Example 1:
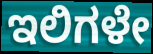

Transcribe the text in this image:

ಇಲಿಗಳೇ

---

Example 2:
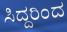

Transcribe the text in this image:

ಸಿದ್ದರಿಂದ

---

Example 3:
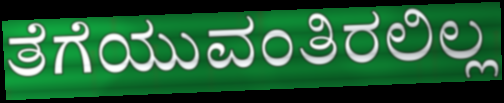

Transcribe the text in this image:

ತೆಗೆಯುವಂತಿರಲಿಲ್ಲ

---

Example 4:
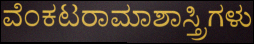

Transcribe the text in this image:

ವೆಂಕಟರಾಮಾಶಾಸ್ತ್ರಿಗಳು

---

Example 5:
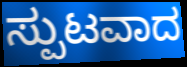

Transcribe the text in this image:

ಸ್ಪುಟವಾದ